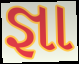
જ્ઞા